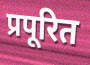
प्रपूरित